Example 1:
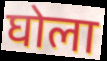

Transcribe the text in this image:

घोला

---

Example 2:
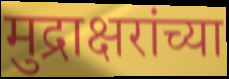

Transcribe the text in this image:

मुद्राक्षरांच्या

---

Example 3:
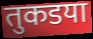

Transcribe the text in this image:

तुकडया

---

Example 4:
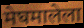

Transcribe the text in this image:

मेघमालेला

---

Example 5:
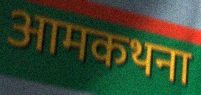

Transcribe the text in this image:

आमकथना